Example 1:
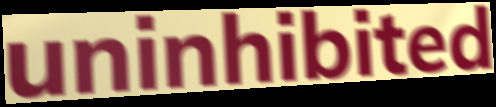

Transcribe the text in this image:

uninhibited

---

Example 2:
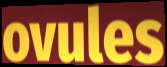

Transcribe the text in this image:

ovules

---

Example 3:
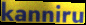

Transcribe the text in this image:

kanniru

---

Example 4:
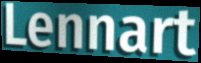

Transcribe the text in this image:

Lennart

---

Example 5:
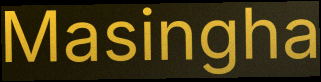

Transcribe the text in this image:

Masingha